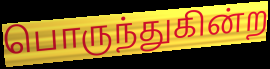
பொருந்துகின்ற